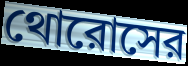
থোরোসের